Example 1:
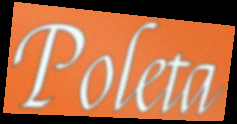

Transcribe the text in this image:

Poleta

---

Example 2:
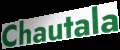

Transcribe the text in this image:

Chautala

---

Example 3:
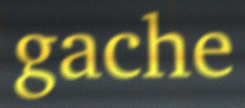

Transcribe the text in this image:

gache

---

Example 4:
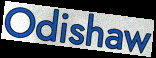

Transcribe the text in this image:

Odishaw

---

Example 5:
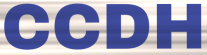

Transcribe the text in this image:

CCDH